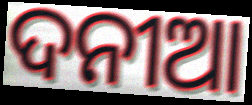
ଦନୀଆ